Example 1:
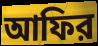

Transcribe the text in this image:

আফির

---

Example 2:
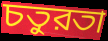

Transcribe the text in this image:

চতুরতা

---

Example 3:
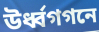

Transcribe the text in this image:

উর্ধ্বগগনে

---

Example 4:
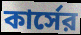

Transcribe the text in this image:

কার্সের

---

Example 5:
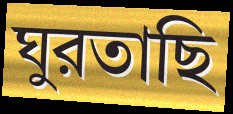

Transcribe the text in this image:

ঘুরতাছি